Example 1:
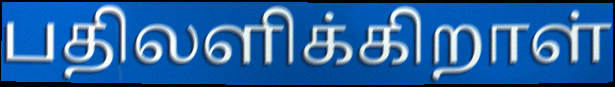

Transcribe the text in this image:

பதிலளிக்கிறாள்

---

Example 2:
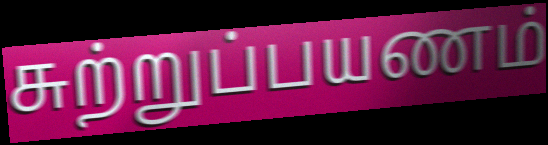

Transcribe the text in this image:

சுற்றுப்பயணம்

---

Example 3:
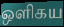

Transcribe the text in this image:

ஒளிகய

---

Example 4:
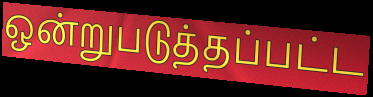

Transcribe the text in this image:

ஒன்றுபடுத்தப்பட்ட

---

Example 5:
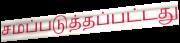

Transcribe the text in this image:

சமப்படுத்தப்பட்டது